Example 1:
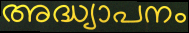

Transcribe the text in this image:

അദ്ധ്യാപനം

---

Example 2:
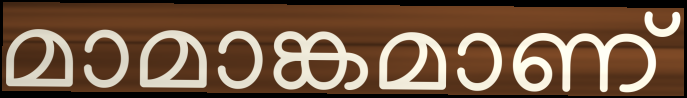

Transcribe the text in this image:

മാമാങ്കമാണ്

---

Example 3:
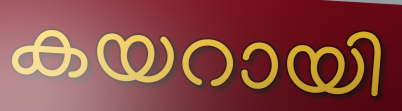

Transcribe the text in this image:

കയറായി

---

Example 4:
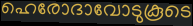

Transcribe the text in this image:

ഹെരോദാവോടുകൂടെ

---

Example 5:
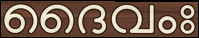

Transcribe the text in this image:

ദൈവംഃ